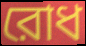
রোধ